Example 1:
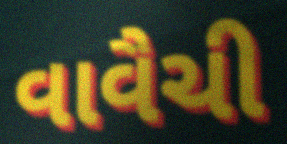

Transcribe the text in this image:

વાવૈચી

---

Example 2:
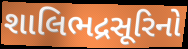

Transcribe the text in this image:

શાલિભદ્રસૂરિનો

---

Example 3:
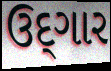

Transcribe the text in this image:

ઉદ્‌ગાર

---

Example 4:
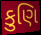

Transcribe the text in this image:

કુણિ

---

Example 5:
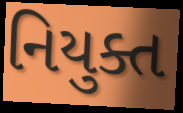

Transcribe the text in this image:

નિયુક્ત